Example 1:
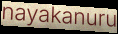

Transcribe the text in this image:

nayakanuru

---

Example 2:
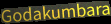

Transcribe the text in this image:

Godakumbara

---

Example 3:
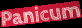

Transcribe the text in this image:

Panicum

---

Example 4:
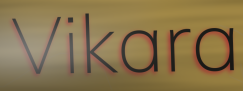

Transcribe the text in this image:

Vikara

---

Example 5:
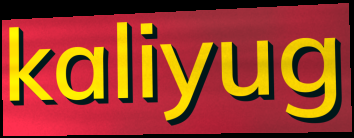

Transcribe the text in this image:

kaliyug